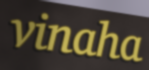
vinaha